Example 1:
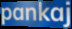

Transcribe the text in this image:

pankaj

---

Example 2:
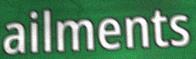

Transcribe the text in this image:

ailments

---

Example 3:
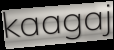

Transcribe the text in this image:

kaagaj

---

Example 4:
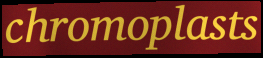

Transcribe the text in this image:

chromoplasts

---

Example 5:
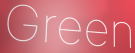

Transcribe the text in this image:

Green